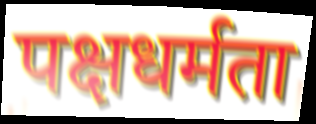
पक्षधर्मता